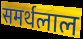
समर्थलाल